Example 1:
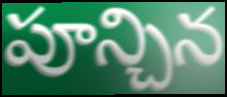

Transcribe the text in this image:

పూన్చిన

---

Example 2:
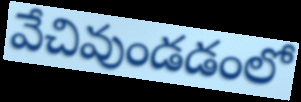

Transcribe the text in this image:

వేచివుండడంలో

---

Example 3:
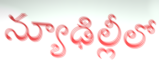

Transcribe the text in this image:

న్యూఢిల్లీలో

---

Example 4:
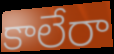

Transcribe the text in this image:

కాలేరా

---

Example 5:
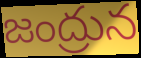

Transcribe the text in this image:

జంద్రున